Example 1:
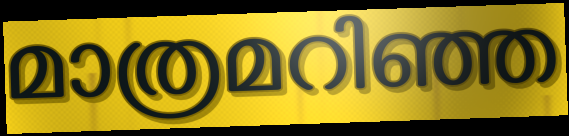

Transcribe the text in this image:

മാത്രമറിഞ്ഞ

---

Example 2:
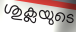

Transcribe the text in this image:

ശുക്ലയുടെ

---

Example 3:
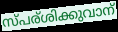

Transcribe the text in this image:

സ്പര്ശിക്കുവാന്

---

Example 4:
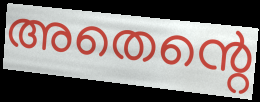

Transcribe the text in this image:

അതെന്റെ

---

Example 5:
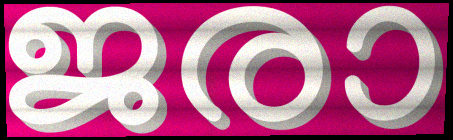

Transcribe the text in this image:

ജരാ